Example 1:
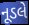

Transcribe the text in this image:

નૂડલે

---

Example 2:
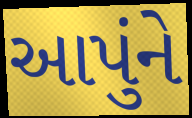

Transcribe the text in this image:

આપુંને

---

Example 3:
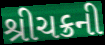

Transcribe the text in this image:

શ્રીચક્રની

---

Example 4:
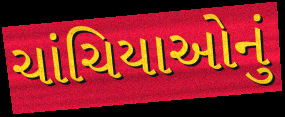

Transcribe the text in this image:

ચાંચિયાઓનું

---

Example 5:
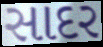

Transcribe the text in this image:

સાદર